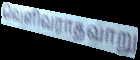
வெளிவராதவாறு